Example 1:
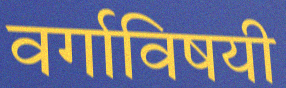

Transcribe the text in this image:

वर्गाविषयी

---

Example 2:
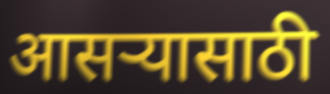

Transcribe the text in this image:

आसऱ्यासाठी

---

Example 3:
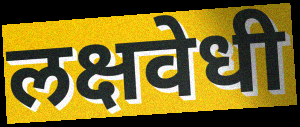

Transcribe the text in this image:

लक्षवेधी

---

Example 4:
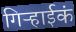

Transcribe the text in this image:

गिऱ्हाईकं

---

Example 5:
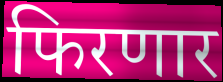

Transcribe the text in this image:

फिरणार